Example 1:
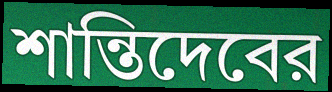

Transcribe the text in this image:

শান্তিদেবের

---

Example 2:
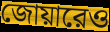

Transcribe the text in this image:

জোয়ারেও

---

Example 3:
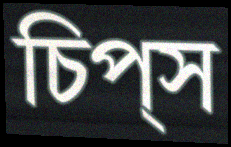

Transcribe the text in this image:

চিপ্‌স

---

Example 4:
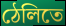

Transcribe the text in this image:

ঠেলিতে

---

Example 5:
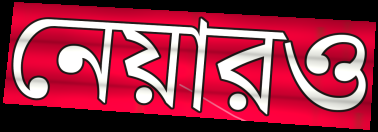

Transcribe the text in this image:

নেয়ারও